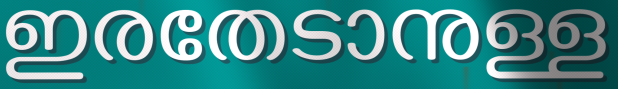
ഇരതേടാനുള്ള